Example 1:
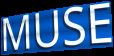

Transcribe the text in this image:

MUSE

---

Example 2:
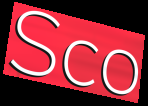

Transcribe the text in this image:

Sco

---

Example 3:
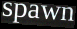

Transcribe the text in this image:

spawn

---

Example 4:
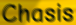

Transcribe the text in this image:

Chasis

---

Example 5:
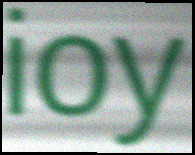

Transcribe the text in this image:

ioy